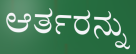
ಆರ್ತರನ್ನು